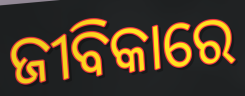
ଜୀବିକାରେ